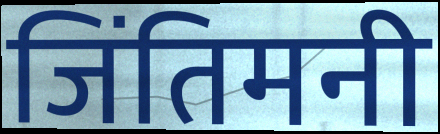
जिंतिमनी